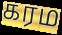
கரம